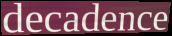
decadence